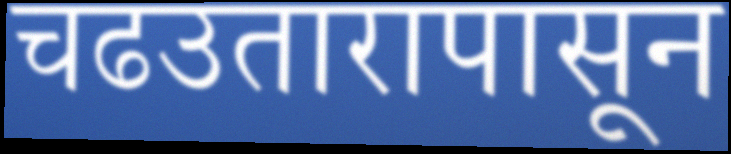
चढउतारापासून